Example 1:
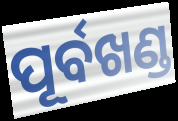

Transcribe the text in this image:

ପୂର୍ବଖଣ୍ଡ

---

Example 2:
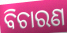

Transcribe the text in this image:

ବିଚାରଣ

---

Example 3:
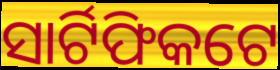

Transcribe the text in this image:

ସାର୍ଟିଫିକଟେ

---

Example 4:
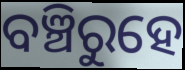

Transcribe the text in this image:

ବଞ୍ଚିରୁହେ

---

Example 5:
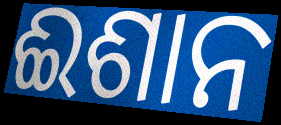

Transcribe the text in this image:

ଈଶାନ